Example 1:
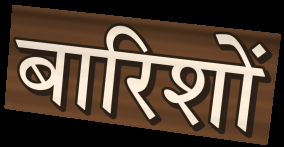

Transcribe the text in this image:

बारिशों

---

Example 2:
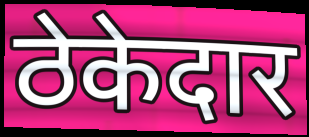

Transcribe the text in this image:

ठेकेदार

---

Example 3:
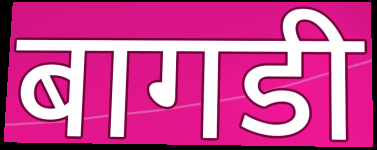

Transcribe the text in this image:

बागडी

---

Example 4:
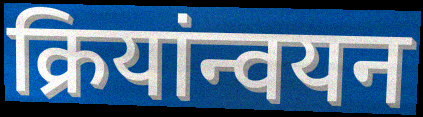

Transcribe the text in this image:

क्रियांन्वयन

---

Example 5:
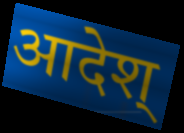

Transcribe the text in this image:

आदेश्